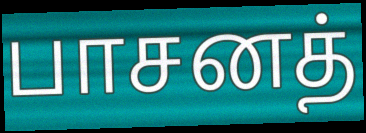
பாசனத்